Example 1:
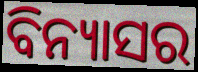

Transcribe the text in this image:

ବିନ୍ୟାସର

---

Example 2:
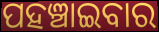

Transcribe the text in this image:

ପହଞ୍ଚାଇବାର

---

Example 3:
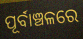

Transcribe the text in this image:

ପୂର୍ବାଞ୍ଚଳରେ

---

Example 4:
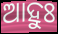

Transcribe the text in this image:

ଆହୁଃ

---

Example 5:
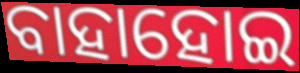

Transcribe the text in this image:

ବାହାହୋଇ